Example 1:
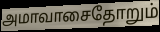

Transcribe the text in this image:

அமாவாசைதோறும்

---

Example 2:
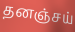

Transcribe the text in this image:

தனஞ்சய்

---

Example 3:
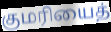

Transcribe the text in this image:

குமரியைத்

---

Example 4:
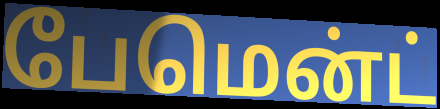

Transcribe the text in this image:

பேமென்ட்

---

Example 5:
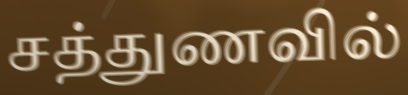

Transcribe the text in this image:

சத்துணவில்